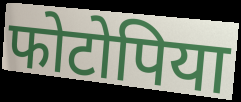
फोटोपिया